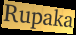
Rupaka